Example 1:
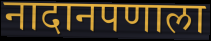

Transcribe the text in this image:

नादानपणाला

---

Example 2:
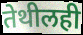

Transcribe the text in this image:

तेथीलही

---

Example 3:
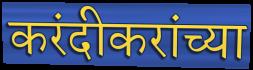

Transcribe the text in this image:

करंदीकरांच्या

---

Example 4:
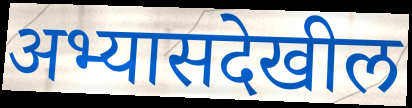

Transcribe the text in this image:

अभ्यासदेखील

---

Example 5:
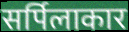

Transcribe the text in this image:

सर्पिलाकार